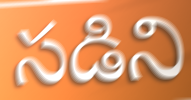
సడిని